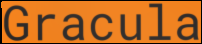
Gracula